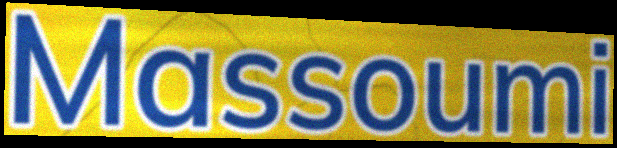
Massoumi